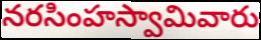
నరసింహస్వామివారు